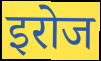
इरोज